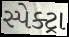
સ્પેક્ટ્રા